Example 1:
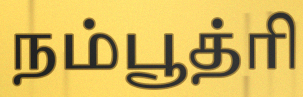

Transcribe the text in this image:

நம்பூத்ரி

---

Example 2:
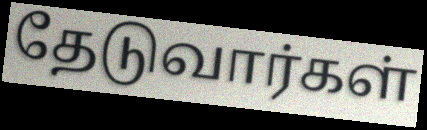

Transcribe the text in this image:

தேடுவார்கள்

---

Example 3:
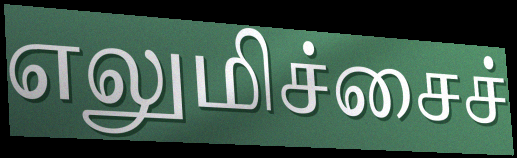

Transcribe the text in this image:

எலுமிச்சைச்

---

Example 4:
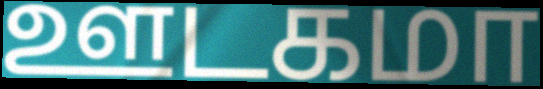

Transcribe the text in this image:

ஊடகமா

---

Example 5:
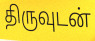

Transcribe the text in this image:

திருவுடன்